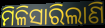
ମିଳିସାରିଲାଣି